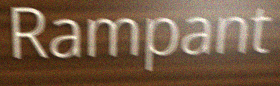
Rampant